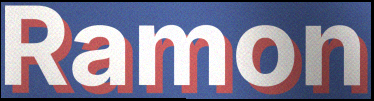
Ramon